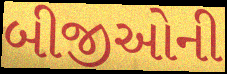
બીજીઓની